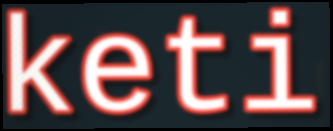
keti